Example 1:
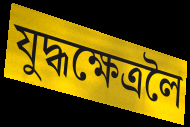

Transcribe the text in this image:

যুদ্ধক্ষেত্ৰলৈ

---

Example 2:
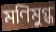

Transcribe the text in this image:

মণিমুগ্ধ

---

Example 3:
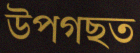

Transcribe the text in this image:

উপগছত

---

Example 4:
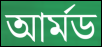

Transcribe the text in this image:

আৰ্মড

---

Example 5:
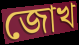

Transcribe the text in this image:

জোখ